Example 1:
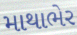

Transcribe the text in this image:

માથાભેર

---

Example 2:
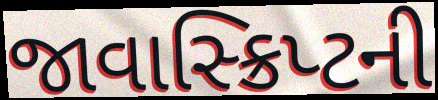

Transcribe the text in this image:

જાવાસ્ક્રિપ્ટની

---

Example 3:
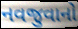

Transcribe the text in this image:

નવજુવાનો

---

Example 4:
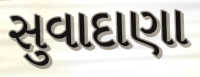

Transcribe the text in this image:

સુવાદાણા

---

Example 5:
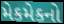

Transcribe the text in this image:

મેકમેકનો